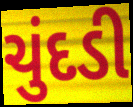
ચુંદડી